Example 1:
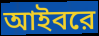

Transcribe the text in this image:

আইবরে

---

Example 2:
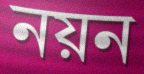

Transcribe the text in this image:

নয়ন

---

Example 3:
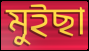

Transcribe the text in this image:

মুইছা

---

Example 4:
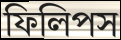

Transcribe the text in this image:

ফিলিপস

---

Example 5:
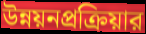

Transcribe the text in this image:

উন্নয়নপ্রক্রিয়ার